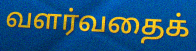
வளர்வதைக்